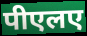
पीएलए